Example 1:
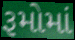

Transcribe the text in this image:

રૂમોમાં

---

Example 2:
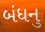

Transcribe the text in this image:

બંધનુ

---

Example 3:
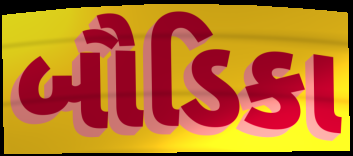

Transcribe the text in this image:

બૌડિકા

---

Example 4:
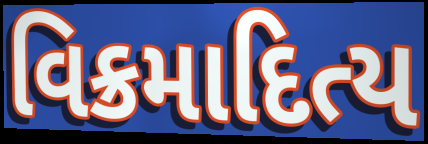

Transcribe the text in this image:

વિક્રમાદિત્ય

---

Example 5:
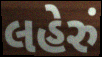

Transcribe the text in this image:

લહેરું